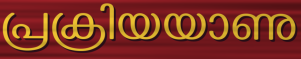
പ്രക്രിയയാണു